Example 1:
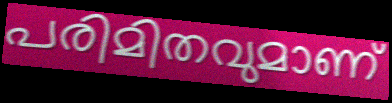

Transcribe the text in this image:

പരിമിതവുമാണ്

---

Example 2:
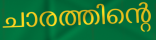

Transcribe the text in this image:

ചാരത്തിന്റെ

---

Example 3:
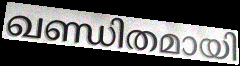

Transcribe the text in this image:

ഖണ്ഡിതമായി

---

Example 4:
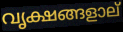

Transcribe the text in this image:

വൃക്ഷങ്ങളാല്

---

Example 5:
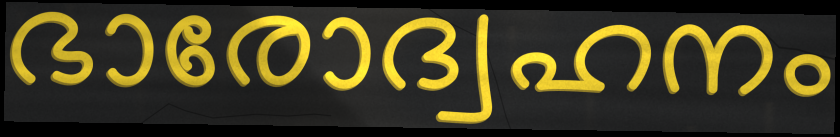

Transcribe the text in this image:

ഭാരോദ്വഹനം